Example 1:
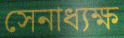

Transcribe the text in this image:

সেনাধ্যক্ষ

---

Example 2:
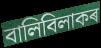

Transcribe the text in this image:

বালিবিলাকৰ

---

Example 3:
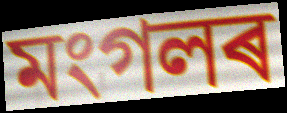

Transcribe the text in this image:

মংগলৰ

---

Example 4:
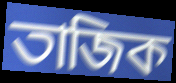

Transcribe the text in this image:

তাজিক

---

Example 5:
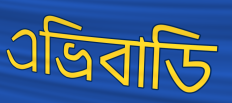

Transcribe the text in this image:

এভ্ৰিবাডি